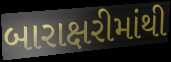
બારાક્ષરીમાંથી